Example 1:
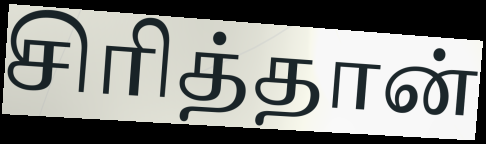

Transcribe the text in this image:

சிரித்தான்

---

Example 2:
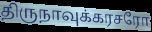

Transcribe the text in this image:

திருநாவுக்கரசரோ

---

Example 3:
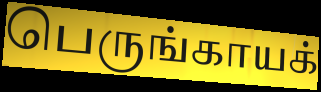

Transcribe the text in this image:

பெருங்காயக்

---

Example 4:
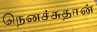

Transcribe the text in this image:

நெனச்சுதான்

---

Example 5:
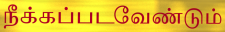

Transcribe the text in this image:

நீக்கப்படவேண்டும்